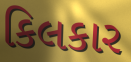
કિલકાર